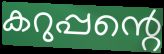
കറുപ്പന്റെ